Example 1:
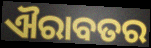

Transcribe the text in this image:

ଐରାବତର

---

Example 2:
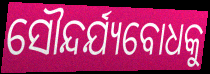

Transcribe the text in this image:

ସୌନ୍ଦର୍ଯ୍ୟବୋଧକୁ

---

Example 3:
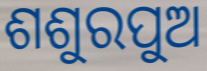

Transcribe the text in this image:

ଶଶୁରପୁଅ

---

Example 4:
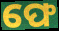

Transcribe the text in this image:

ଫେ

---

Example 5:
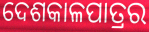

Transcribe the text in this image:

ଦେଶକାଳପାତ୍ରର